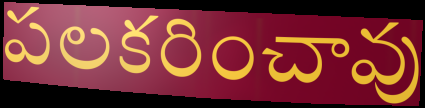
పలకరించావు